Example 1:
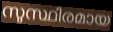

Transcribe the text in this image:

സുസ്ഥിരമായ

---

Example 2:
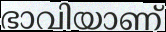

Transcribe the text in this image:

ഭാവിയാണ്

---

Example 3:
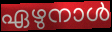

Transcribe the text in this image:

ഏഴുനാൾ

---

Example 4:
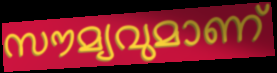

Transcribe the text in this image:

സൗമ്യവുമാണ്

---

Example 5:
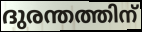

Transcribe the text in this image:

ദുരന്തത്തിന്